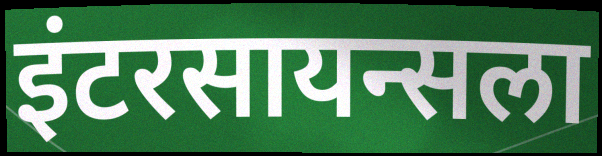
इंटरसायन्सला